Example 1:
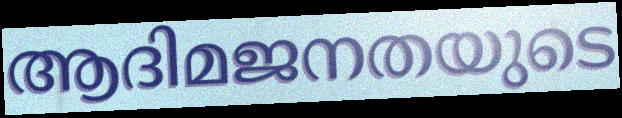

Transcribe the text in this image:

ആദിമജനതയുടെ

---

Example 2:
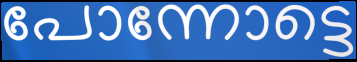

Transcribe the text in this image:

പോന്നോട്ടെ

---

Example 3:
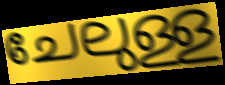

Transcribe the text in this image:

ചേലുള്ള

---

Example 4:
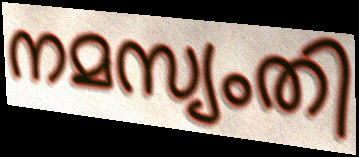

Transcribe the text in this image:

നമസ്യംതി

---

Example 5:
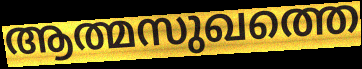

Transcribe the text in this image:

ആത്മസുഖത്തെ